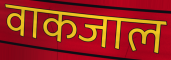
वाकजाल